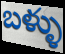
బళ్ళు